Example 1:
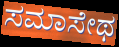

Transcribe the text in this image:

ಸಮಾಸೇಥ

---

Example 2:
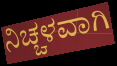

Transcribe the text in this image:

ನಿಚ್ಚಳವಾಗಿ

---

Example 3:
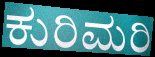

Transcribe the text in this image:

ಕುರಿಮರಿ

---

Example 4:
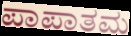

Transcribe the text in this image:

ಪಾಪಾತಮ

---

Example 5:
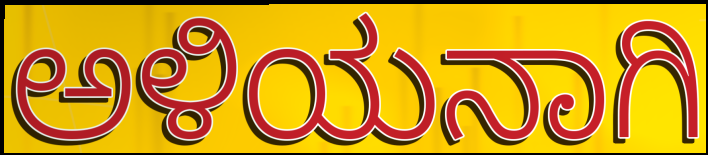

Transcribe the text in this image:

ಅಳಿಯನಾಗಿ